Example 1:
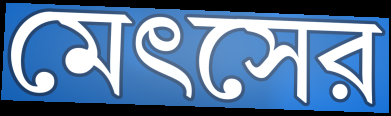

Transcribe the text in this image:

মেৎসের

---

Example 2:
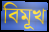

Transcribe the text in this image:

বিমূখ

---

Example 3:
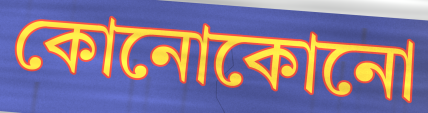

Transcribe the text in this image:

কোনোকোনো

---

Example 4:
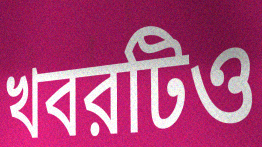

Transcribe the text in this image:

খবরটিও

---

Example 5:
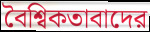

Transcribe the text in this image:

বৈশ্বিকতাবাদের